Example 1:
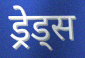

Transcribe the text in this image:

ड्रेड्स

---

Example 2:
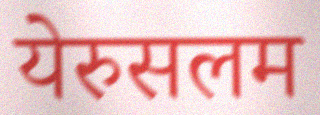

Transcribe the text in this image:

येरुसलम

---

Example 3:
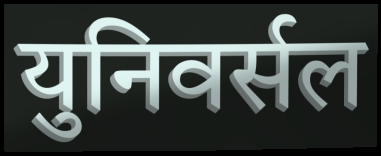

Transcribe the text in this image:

युनिवर्सल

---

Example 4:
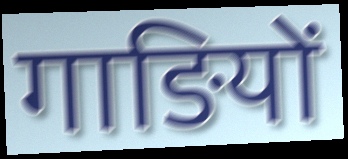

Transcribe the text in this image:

गाङियों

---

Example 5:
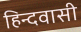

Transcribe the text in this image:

हिन्दवासी